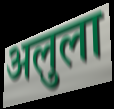
अलुला